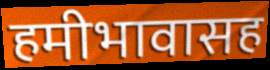
हमीभावासह